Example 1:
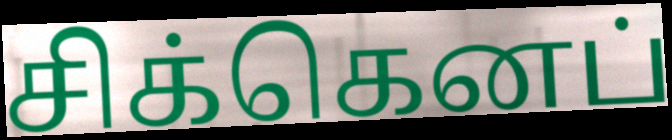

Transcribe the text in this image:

சிக்கெனப்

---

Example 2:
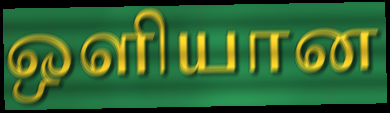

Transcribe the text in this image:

ஒளியான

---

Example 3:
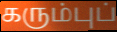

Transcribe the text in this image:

கரும்புப்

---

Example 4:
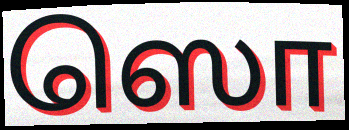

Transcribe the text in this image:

ஸொ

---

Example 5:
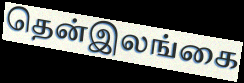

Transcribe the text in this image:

தென்இலங்கை